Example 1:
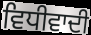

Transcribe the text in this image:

ਵਿਧੀਵਾਦੀ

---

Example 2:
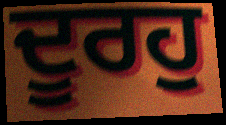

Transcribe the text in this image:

ਦੂਰਹੁ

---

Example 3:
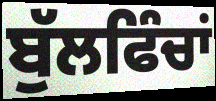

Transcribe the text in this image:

ਬੁੱਲਫਿੰਚਾਂ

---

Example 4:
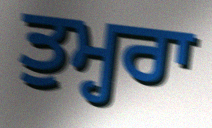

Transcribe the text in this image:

ਤੁਮ੍ਹਰਾ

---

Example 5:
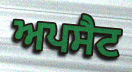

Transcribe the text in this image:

ਅਪਸੈਟ